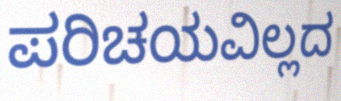
ಪರಿಚಯವಿಲ್ಲದ